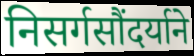
निसर्गसौंदर्याने